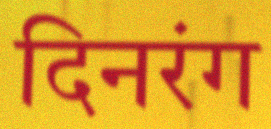
दिनरंग